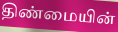
திண்மையின்